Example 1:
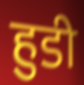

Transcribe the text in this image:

हुडी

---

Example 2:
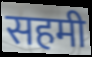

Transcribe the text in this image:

सहमी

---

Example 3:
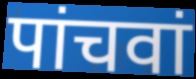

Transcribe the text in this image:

पांचवां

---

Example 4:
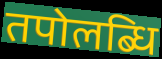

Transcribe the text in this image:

तपोलब्धि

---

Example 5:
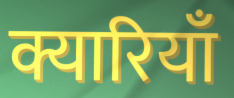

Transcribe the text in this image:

क्यारियाँ